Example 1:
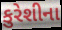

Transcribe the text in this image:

કુરેશીના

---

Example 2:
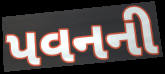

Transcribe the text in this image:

પવનની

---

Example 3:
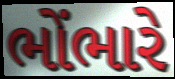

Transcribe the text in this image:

ભોંભારે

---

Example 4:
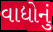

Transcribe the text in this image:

વાદ્યોનું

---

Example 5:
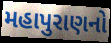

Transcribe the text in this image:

મહાપુરાણનો